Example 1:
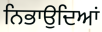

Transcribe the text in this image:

ਨਿਭਾਉਦਿਆਂ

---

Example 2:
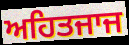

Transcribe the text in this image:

ਅਹਿਤਜਾਜ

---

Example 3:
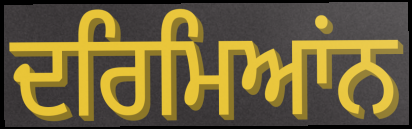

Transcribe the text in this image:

ਦਰਿਮਿਆਂਨ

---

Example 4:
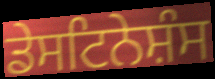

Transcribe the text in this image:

ਡੇਸਟਿਨੇਸ਼ੰਸ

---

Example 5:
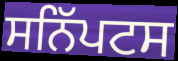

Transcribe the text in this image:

ਸਨਿੱਪਟਸ